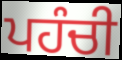
ਪਹੰਚੀ